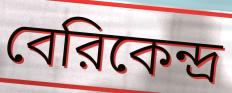
বেরিকেন্দ্র